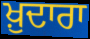
ਖ਼ੁਦਾਰਾ